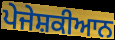
ਪੇਜੇਸ਼ਕੀਆਨ